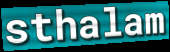
sthalam